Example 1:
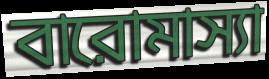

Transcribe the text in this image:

বারোমাস্যা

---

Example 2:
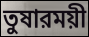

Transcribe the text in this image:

তুষারময়ী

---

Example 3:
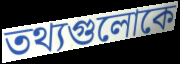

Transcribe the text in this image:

তথ্যগুলোকে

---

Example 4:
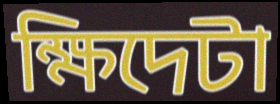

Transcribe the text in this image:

ক্ষিদেটা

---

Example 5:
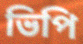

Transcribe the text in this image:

ভিপি